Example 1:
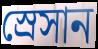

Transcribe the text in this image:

স্রেসান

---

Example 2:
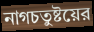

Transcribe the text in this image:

নাগচতুষ্টয়ের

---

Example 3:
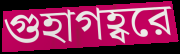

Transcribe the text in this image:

গুহাগহ্বরে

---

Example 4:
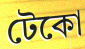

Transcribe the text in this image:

টেকো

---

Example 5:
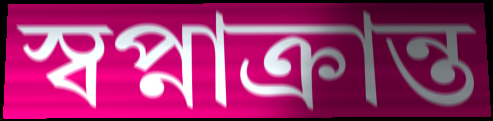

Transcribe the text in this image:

স্বপ্নাক্রান্ত